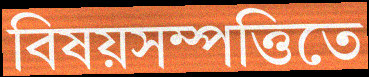
বিষয়সম্পত্তিতে